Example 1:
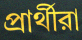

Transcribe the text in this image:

প্রার্থীরা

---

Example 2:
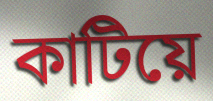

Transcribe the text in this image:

কাটিয়ে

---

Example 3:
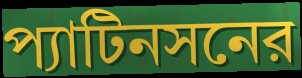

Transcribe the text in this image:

প্যাটিনসনের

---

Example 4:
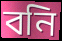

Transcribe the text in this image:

বনি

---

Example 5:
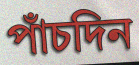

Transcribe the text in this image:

পাঁচদিন